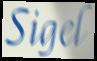
Sigel